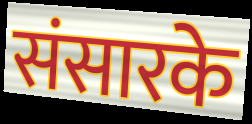
संसारके